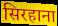
सिरहाना